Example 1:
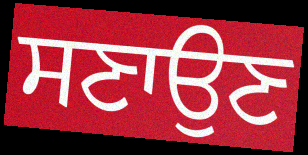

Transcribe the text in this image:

ਸਣਾਉਣ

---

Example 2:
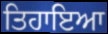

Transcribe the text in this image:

ਤਿਹਾਇਆ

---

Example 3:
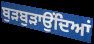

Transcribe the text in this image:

ਬੁੜਬੁੜਾਉਂਦਿਆਂ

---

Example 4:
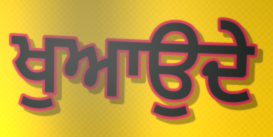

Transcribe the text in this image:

ਖੁਆਉਦੇ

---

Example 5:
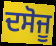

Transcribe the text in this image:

ਦਸੋਜੂ